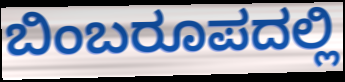
ಬಿಂಬರೂಪದಲ್ಲಿ